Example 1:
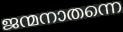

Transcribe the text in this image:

ജന്മനാതന്നെ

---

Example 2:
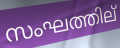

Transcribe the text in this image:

സംഘത്തില്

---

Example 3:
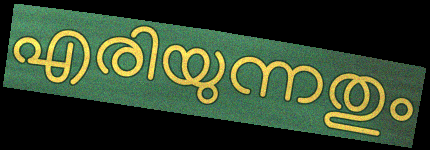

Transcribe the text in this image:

എരിയുന്നതും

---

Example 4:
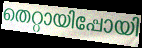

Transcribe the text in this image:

തെറ്റായിപ്പോയി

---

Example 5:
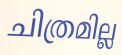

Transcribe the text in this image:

ചിത്രമില്ല